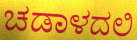
ಚಡಾಳದಲಿ